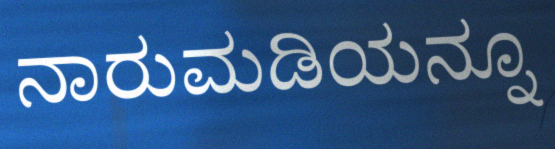
ನಾರುಮಡಿಯನ್ನೂ